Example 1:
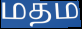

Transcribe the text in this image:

மதம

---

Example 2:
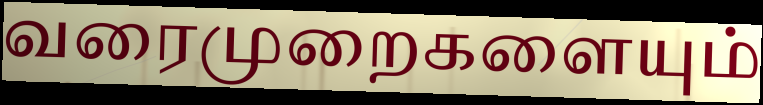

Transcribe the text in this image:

வரைமுறைகளையும்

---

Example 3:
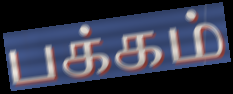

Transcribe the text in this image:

பக்கம்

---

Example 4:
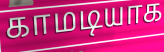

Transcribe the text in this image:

காமடியாக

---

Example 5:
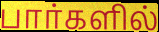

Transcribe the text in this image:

பார்களில்